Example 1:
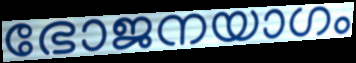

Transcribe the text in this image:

ഭോജനയാഗം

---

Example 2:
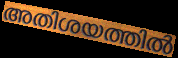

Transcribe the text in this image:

അതിശയത്തിൽ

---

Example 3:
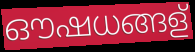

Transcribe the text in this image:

ഔഷധങ്ങള്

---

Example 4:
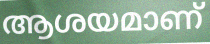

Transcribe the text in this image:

ആശയമാണ്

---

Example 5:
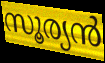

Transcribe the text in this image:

സൂര്യൻ